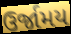
ઉર્જામય